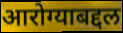
आरोग्याबद्दल